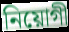
নিয়োগী